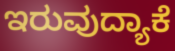
ಇರುವುದ್ಯಾಕೆ